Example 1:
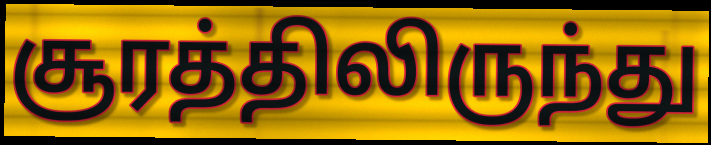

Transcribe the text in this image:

சூரத்திலிருந்து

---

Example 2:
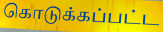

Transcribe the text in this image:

கொடுக்கப்பட்ட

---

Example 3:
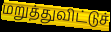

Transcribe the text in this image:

மறுத்துவிட்டுச்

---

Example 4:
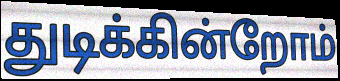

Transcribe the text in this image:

துடிக்கின்றோம்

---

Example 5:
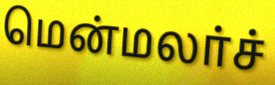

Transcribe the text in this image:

மென்மலர்ச்